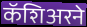
कॅशिअरने